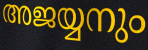
അജയ്യനും